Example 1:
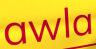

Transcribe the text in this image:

awla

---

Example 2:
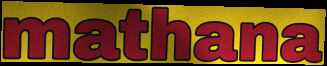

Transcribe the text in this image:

mathana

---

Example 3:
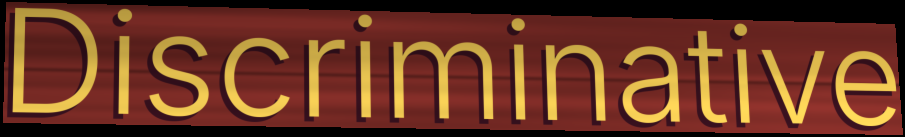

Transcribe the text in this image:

Discriminative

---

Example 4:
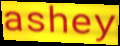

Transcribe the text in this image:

ashey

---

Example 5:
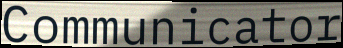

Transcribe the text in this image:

Communicator